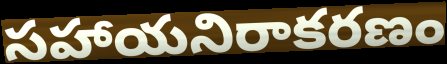
సహాయనిరాకరణం